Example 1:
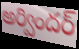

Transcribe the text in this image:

అర్విందర్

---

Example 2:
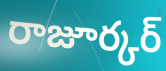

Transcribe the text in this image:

రాజూర్కర్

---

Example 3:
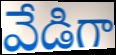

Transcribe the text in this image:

వేడిగా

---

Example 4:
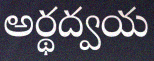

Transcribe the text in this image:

అర్థద్వయ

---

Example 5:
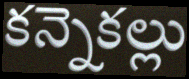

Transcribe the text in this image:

కన్నెకల్లు